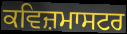
ਕਵਿਜ਼ਮਾਸਟਰ